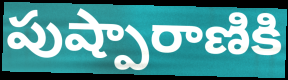
పుష్పారాణికి